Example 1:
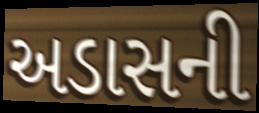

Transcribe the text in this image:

અડાસની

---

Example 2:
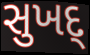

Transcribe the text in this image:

સુખદ્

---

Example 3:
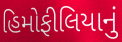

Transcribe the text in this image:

હિમોફીલિયાનું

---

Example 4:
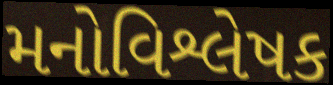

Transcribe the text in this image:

મનોવિશ્લેષક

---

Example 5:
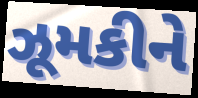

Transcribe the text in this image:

ઝૂમકીને